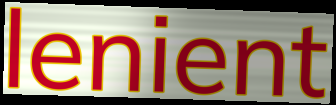
lenient